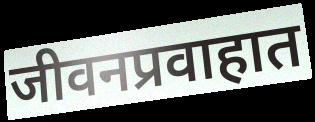
जीवनप्रवाहात